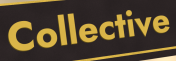
Collective